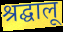
श्रद्घालू